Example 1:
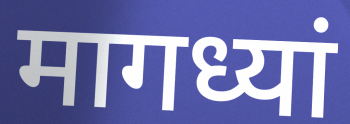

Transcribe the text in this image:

मागध्यां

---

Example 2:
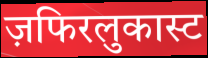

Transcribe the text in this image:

ज़फिरलुकास्ट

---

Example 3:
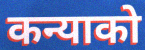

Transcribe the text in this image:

कन्याको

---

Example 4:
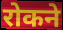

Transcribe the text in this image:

रोकने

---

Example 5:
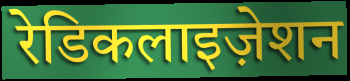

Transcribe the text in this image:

रेडिकलाइज़ेशन